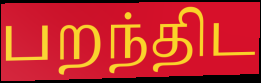
பறந்திட